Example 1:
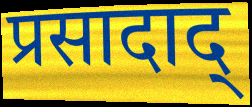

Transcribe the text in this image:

प्रसादाद्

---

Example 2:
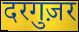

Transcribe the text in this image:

दरगुज़र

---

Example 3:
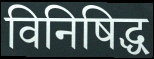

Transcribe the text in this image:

विनिषिद्ध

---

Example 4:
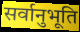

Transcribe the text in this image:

सर्वानुभूति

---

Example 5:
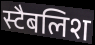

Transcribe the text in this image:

स्टैबलिश